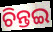
ଚିନ୍ତଇ